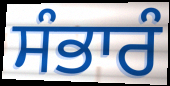
ਸੰਭਾਰੰ